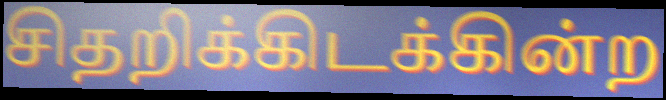
சிதறிக்கிடக்கின்ற